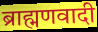
ब्राह्मणवादी